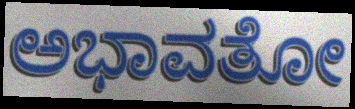
ಅಭಾವತೋ